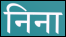
निना